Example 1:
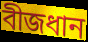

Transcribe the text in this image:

বীজধান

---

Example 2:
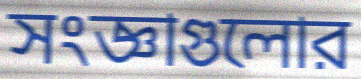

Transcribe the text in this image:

সংজ্ঞাগুলোর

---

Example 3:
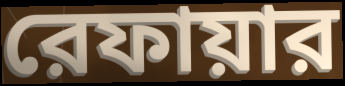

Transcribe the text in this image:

রেফায়ার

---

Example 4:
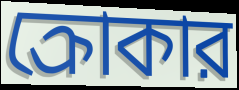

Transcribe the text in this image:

ক্রোকার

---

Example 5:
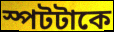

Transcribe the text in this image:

স্পটটাকে